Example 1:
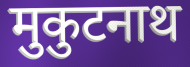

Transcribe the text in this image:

मुकुटनाथ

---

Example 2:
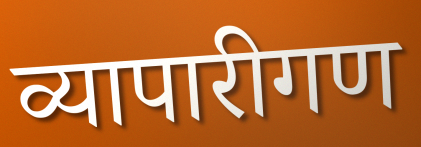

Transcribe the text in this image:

व्यापारीगण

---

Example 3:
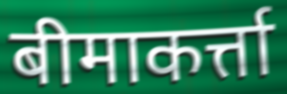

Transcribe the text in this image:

बीमाकर्त्ता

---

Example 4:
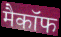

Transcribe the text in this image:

मैकॉफ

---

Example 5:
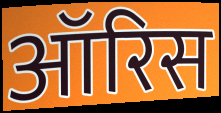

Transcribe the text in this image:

ऑरिस